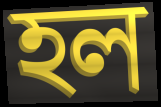
হল